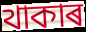
থাকাৰ